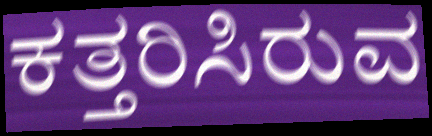
ಕತ್ತರಿಸಿರುವ